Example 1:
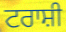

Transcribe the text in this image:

ਟਰਾਸ਼ੀ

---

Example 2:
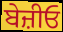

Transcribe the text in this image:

ਬੇਜ਼ੀਓ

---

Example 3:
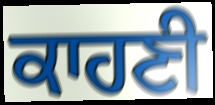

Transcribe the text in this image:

ਕਾਹਣੀ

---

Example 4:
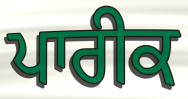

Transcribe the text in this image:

ਪਾਰੀਕ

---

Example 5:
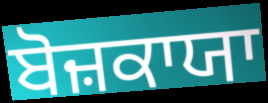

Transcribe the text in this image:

ਬੋਜ਼ਕਾਯਾ